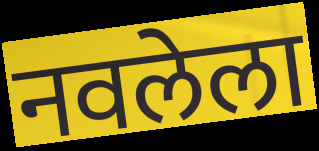
नवलेला